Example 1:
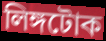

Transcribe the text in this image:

লিঙ্গটোক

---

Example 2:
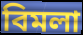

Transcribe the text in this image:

বিমলা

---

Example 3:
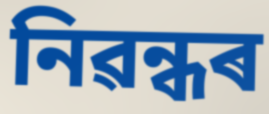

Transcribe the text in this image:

নিৱন্ধৰ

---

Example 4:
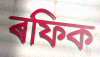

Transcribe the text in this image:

ৰফিক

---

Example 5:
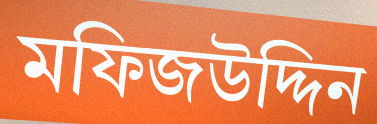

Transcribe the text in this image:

মফিজউদ্দিন